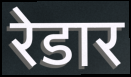
रेडार